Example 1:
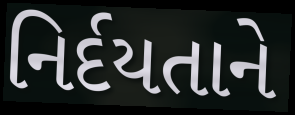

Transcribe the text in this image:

નિર્દયતાને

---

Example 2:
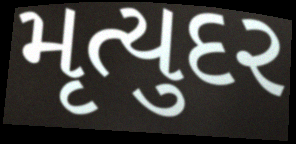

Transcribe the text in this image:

મૃત્યુદર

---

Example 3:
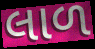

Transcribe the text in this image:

લાળ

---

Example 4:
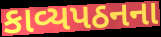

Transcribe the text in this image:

કાવ્યપઠનના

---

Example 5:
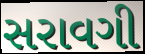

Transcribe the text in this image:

સરાવગી